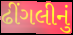
ઢીંગલીનું